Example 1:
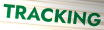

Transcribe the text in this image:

TRACKING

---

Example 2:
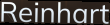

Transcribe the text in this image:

Reinhart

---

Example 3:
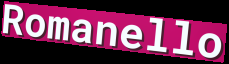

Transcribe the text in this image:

Romanello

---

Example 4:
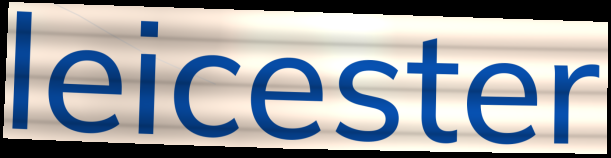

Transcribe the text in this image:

leicester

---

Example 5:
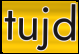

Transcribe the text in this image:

tujd